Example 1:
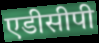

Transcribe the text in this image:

एडीसीपी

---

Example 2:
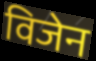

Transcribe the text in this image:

विजेन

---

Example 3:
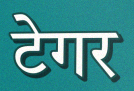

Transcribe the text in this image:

टेगर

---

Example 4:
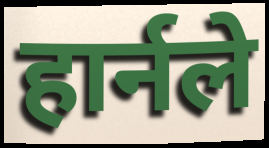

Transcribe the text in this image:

हार्नले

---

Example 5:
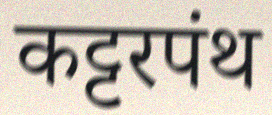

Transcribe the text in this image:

कट्टरपंथ